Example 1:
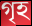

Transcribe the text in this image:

গৃহ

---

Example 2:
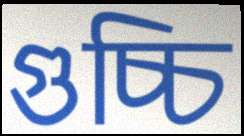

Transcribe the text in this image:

গুচ্চি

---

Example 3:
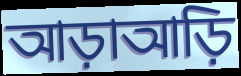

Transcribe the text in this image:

আড়াআড়ি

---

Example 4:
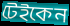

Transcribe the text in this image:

টেইকেন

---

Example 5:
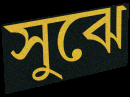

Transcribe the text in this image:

সুঝে